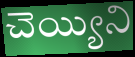
చెయ్యిని